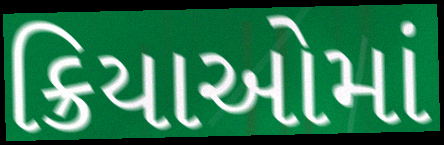
ક્રિયાઓમાં